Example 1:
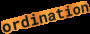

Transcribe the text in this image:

ordination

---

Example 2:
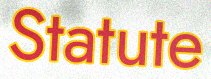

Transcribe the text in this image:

Statute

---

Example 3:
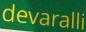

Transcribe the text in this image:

devaralli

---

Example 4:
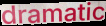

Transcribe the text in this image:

dramatic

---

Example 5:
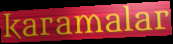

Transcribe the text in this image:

karamalar